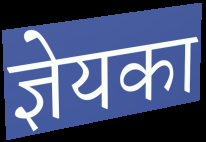
ज्ञेयका